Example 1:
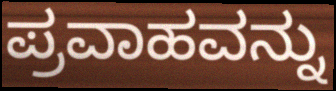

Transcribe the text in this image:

ಪ್ರವಾಹವನ್ನು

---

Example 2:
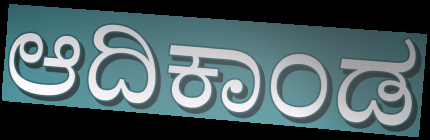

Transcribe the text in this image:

ಆದಿಕಾಂಡ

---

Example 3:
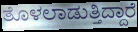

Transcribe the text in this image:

ತೊಳಲಾಡುತ್ತಿದ್ದಾರೆ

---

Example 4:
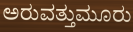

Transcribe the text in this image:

ಅರುವತ್ತುಮೂರು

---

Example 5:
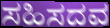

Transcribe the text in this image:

ಸಹಿಸದವ